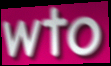
wto